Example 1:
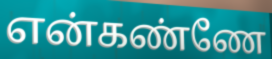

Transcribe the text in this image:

என்கண்ணே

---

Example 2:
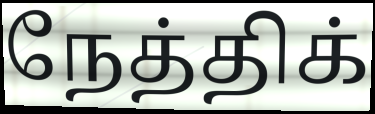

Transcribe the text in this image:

நேத்திக்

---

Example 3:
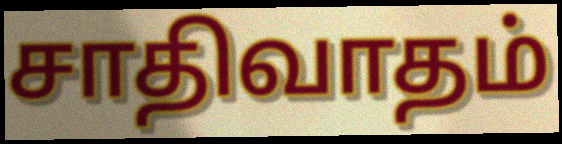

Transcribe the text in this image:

சாதிவாதம்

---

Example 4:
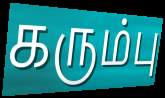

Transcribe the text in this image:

கரும்பு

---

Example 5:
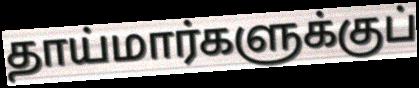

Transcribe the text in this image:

தாய்மார்களுக்குப்